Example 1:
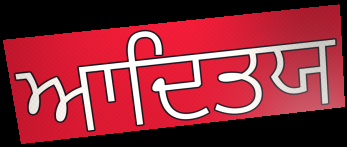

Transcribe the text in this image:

ਆਦਿਤਯ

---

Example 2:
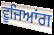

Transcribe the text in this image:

ਵੂਜਿਆਂਗ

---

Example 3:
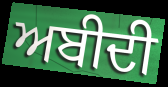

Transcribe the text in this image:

ਅਬੀਦੀ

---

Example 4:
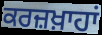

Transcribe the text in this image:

ਕਰਜ਼ਖ਼ਾਹਾਂ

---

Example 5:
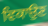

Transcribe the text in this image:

ਵਿਕਾਉਣ